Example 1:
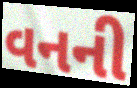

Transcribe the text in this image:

વનની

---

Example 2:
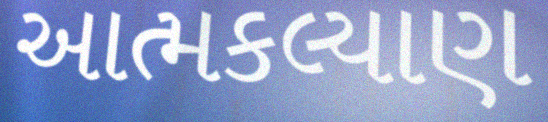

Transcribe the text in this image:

આત્મકલ્યાણ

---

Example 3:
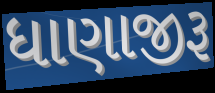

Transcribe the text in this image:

ધાણાજીરૂ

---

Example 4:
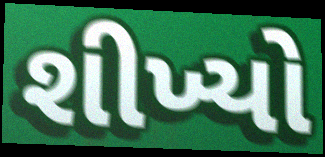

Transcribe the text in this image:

શીખ્યો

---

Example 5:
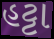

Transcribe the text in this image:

હટ્ટા